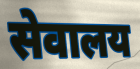
सेवालय